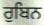
ਰੁਬਿਨ